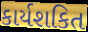
કાર્યશકિત